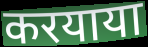
करयाया